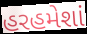
હરહમેશાં